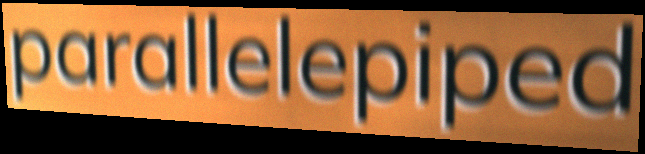
parallelepiped